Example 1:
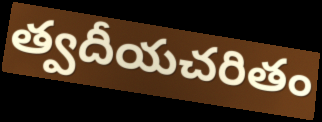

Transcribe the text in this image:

త్వదీయచరితం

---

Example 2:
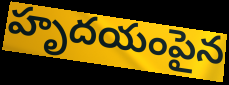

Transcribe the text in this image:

హృదయంపైన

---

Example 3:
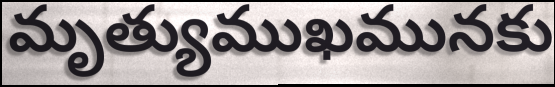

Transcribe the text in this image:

మృత్యుముఖమునకు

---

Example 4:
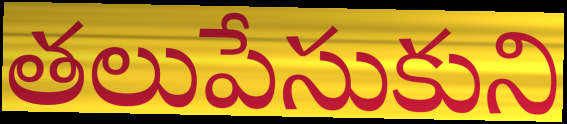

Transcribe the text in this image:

తలుపేసుకుని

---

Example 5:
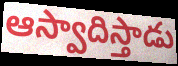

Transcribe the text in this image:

ఆస్వాదిస్తాడు